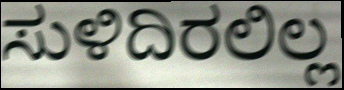
ಸುಳಿದಿರಲಿಲ್ಲ